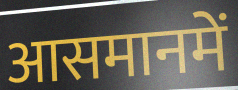
आसमानमें